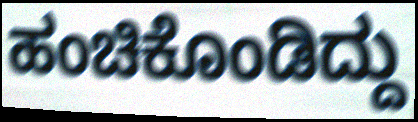
ಹಂಚಿಕೊಂಡಿದ್ದು